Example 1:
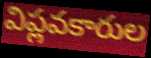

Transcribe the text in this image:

విప్లవకారుల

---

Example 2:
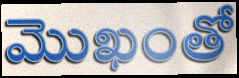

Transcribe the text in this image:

మొఖంతో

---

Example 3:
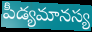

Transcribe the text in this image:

పీడ్యమానస్య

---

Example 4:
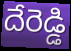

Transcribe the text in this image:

దేరెడ్డి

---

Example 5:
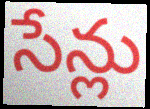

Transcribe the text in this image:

సేన్లు